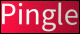
Pingle